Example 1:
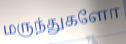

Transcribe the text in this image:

மருந்துகளோ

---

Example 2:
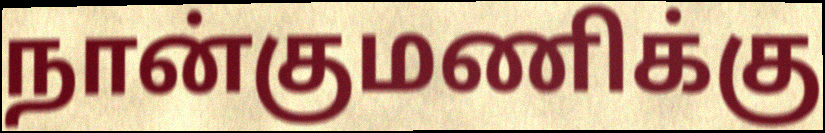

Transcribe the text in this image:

நான்குமணிக்கு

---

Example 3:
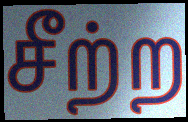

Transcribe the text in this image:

சீற்ற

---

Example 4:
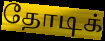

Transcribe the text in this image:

தோடிக்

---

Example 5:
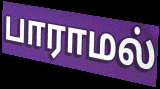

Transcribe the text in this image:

பாராமல்